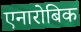
एनारोबिक